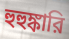
হুহুঙ্কারি